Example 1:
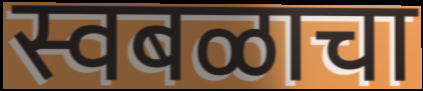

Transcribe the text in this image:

स्वबळाचा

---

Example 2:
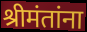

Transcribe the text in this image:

श्रीमंतांना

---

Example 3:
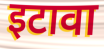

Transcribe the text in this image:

इटावा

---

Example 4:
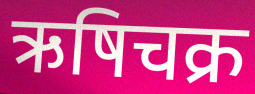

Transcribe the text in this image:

ऋषिचक्र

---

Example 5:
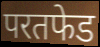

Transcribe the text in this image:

परतफेड